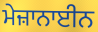
ਮੇਜ਼ਾਨਾਈਨ